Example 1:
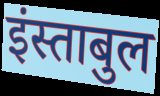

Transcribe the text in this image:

इंस्ताबुल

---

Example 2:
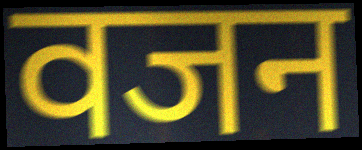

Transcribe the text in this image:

वजन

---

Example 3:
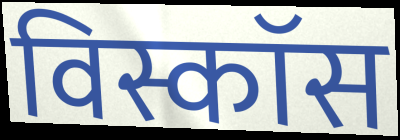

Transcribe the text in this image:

विस्कॉस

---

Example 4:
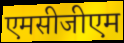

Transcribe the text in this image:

एमसीजीएम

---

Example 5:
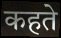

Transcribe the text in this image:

कहते